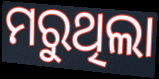
ମରୁଥିଲା